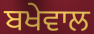
ਬਖੇਵਾਲ